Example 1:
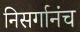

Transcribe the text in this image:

निसर्गानंच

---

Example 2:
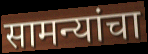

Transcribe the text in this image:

सामन्यांचा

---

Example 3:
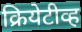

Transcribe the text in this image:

क्रियेटीव्ह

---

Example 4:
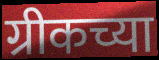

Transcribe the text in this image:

ग्रीकच्या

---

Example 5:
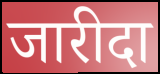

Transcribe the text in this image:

जारीदा